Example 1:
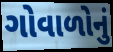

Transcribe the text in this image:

ગોવાળોનું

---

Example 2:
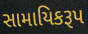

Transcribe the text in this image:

સામાયિકરૂપ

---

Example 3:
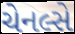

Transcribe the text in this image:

ચેનલ્સે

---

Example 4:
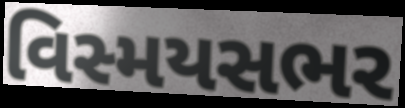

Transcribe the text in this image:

વિસ્મયસભર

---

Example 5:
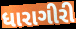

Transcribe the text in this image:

ધારાગીરી